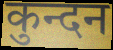
कुन्‍दन